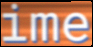
ime